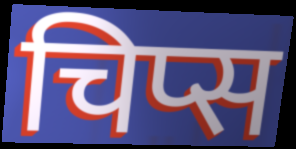
चिप्‍स